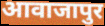
आवाजापुर